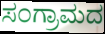
ಸಂಗ್ರಾಮದ